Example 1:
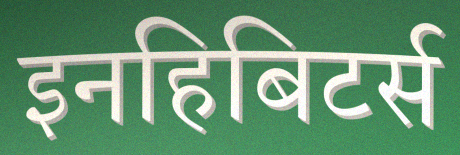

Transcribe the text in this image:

इनहिबिटर्स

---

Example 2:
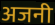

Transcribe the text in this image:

अजनी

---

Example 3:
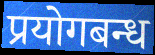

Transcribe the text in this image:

प्रयोगबन्ध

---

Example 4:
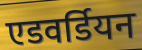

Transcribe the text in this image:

एडवर्डियन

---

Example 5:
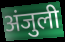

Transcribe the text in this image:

अंजुली